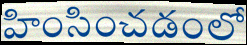
హింసించడంలో